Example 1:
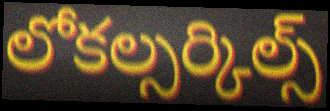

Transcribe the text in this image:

లోకల్సర్కిల్స్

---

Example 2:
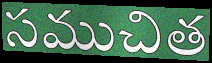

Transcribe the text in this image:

సముచిత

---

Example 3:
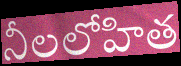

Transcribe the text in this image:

నీలలోహిత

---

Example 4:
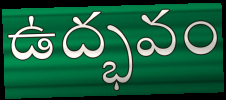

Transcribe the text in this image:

ఉద్భవం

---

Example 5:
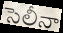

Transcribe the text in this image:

సెలీనా